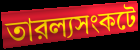
তারল্যসংকটে